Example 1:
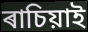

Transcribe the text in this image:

ৰাচিয়াই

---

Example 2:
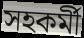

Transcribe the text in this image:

সহকৰ্মী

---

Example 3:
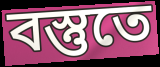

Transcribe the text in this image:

বস্তুতে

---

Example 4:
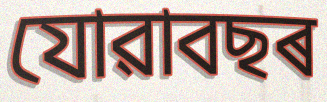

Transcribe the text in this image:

যোৱাবছৰ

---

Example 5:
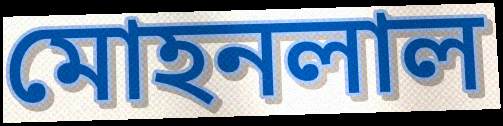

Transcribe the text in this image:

মোহনলাল